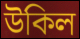
উকিল